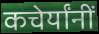
कचेर्यांनीं